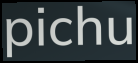
pichu